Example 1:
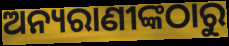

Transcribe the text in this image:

ଅନ୍ୟରାଣୀଙ୍କଠାରୁ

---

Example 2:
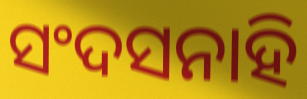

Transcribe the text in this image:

ସଂଦସନାହି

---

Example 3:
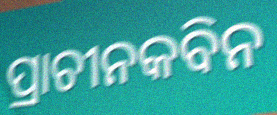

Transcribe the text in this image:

ପ୍ରାଚୀନକବିନ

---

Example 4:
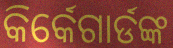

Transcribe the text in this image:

କିର୍କେଗାର୍ଡଙ୍କ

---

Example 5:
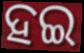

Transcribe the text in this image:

ହଇ